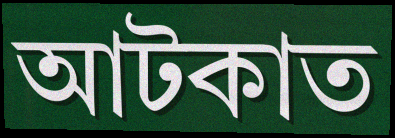
আটকাত